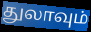
துலாவும்